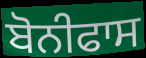
ਬੋਨੀਫਾਸ